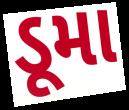
ડૂમા